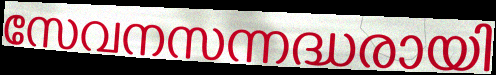
സേവനസന്നദ്ധരായി